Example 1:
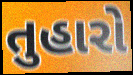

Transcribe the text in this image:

તુહારો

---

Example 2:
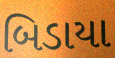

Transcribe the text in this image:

બિડાયા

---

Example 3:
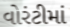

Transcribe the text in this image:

વોરંટીમાં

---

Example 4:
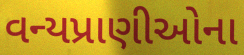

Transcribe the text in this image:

વન્યપ્રાણીઓના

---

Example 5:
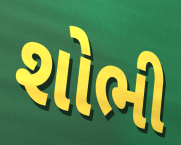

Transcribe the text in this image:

શોભી